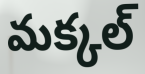
మక్కల్